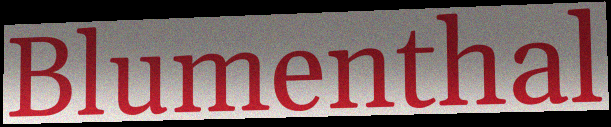
Blumenthal